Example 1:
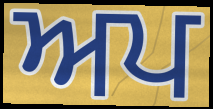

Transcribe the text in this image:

ਅਪ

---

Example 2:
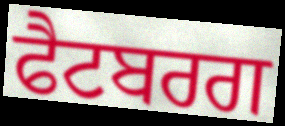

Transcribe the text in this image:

ਫੈਟਬਰਗ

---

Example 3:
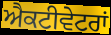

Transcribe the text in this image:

ਐਕਟੀਵੇਟਰਾਂ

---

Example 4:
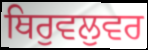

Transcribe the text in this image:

ਥਿਰੁਵਲੁਵਰ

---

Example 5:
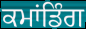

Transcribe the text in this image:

ਕਮਾਂਡਿੰਗ